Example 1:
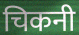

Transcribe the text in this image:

चिकनी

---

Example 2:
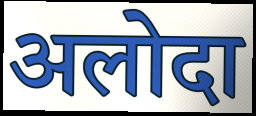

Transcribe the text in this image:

अलोदा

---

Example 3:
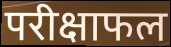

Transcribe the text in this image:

परीक्षाफल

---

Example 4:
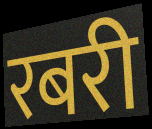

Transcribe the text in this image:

रबरी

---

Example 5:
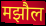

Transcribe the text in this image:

मझौल